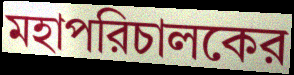
মহাপরিচালকের